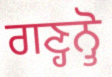
ਗਣ੍ਹਨ੍ਤੋ